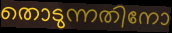
തൊടുന്നതിനോ